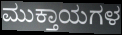
ಮುಕ್ತಾಯಗಳ